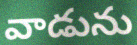
వాడును